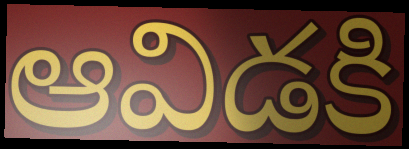
ఆవిడకి